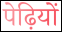
पेढ़ियों